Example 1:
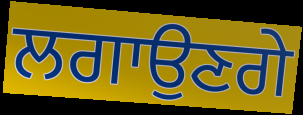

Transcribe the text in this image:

ਲਗਾਉਣਗੇ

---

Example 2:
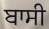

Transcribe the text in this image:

ਬਾਸੀ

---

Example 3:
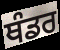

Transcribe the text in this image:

ਥੰਡਰ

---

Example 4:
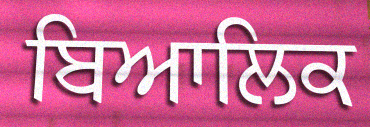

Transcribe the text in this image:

ਬਿਆਲਿਕ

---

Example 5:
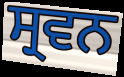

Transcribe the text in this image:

ਸ੍ਰਵਨ